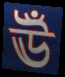
ঊঁ